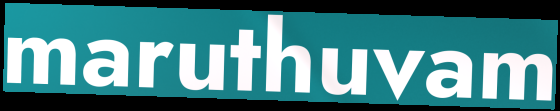
maruthuvam